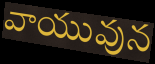
వాయువున